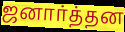
ஜனார்த்தன